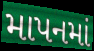
માપનમાં